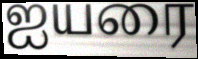
ஐயரை